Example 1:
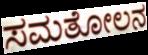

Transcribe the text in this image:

ಸಮತೋಲನ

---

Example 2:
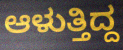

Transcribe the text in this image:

ಆಳುತ್ತಿದ್ದ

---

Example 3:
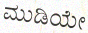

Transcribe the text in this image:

ಮುಡಿಯೇ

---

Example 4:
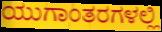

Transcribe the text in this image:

ಯುಗಾಂತರಗಳಲ್ಲಿ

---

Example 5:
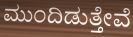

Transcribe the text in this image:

ಮುಂದಿಡುತ್ತೇವೆ